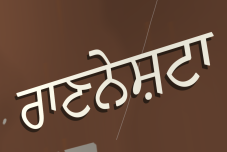
ਰਾਣਨੇਸ਼ਟਾ